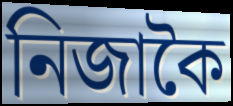
নিজাকৈ